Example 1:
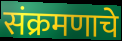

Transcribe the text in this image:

संक्रमणाचे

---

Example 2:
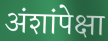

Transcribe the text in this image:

अंशांपेक्षा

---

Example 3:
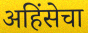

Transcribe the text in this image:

अहिंसेचा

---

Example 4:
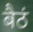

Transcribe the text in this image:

बैठं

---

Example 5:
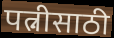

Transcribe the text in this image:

पत्नीसाठी